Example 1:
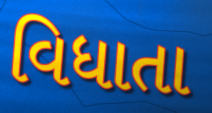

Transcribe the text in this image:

વિધાતા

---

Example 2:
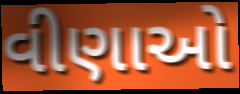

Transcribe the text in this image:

વીણાઓ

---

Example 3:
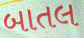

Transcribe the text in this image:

બાતલ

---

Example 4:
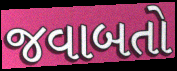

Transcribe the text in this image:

જવાબતો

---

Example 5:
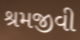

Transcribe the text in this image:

શ્રમજીવી